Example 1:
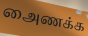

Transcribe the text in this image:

அைணக்க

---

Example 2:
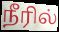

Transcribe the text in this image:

நீரில்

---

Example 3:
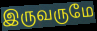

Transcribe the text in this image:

இருவருமே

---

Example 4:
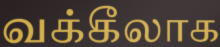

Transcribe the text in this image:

வக்கீலாக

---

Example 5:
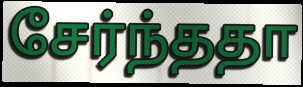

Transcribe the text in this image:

சேர்ந்ததா